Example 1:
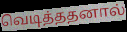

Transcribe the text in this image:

வெடித்ததனால்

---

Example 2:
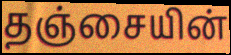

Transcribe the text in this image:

தஞ்சையின்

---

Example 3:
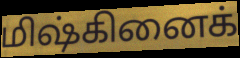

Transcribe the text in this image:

மிஷ்கினைக்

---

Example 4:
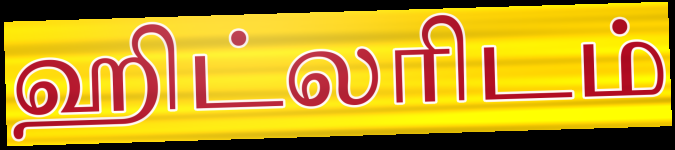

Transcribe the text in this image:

ஹிட்லரிடம்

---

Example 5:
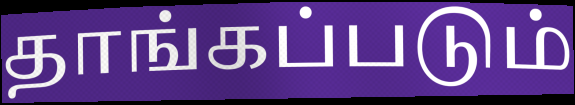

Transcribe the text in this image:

தாங்கப்படும்